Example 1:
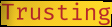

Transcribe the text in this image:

Trusting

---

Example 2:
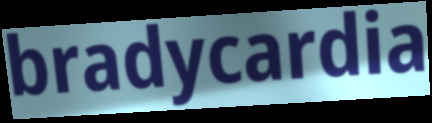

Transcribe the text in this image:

bradycardia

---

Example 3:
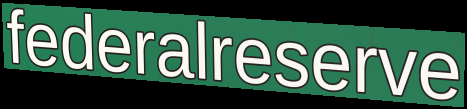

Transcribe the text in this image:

federalreserve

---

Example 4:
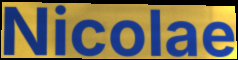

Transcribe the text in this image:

Nicolae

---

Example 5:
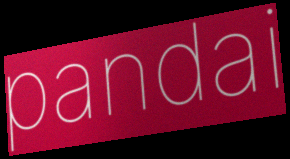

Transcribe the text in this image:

pandai